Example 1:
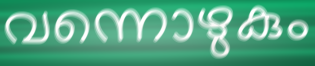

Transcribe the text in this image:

വന്നൊഴുകും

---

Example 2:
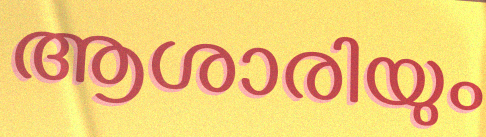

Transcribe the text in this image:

ആശാരിയും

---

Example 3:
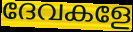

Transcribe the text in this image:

ദേവകളേ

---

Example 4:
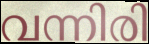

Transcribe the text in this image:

വന്നിരി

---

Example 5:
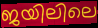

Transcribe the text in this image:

ജയിലിലെ